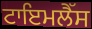
ਟਾਇਮਲੈੱਸ